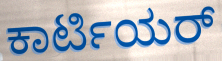
ಕಾರ್ಟಿಯರ್